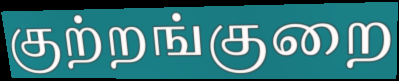
குற்றங்குறை